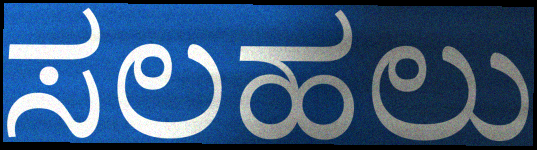
ಸಲಹಲು